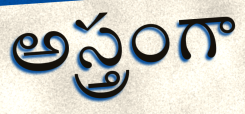
అస్త్రంగా